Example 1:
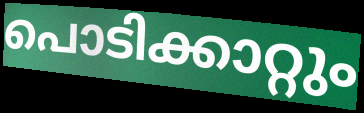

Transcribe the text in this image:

പൊടിക്കാറ്റും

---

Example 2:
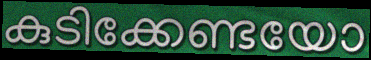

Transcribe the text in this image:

കുടിക്കേണ്ടയോ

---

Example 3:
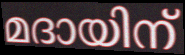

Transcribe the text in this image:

മദായിന്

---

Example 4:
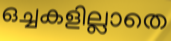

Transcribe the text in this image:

ഒച്ചകളില്ലാതെ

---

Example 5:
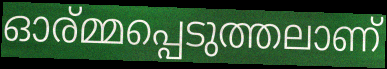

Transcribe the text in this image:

ഓര്മ്മപ്പെടുത്തലാണ്